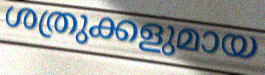
ശത്രുക്കളുമായ